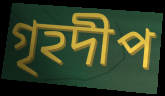
গৃহদীপ